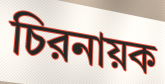
চিরনায়ক